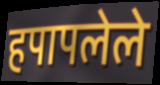
हपापलेले